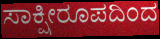
ಸಾಕ್ಷೀರೂಪದಿಂದ